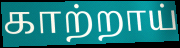
காற்றாய்